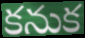
కనుక